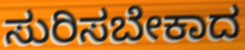
ಸುರಿಸಬೇಕಾದ